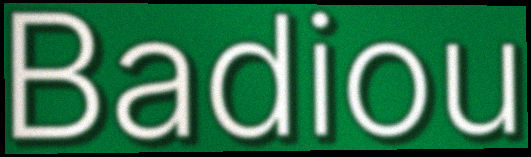
Badiou